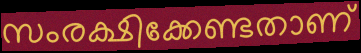
സംരക്ഷിക്കേണ്ടതാണ്